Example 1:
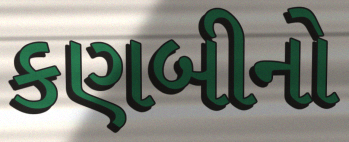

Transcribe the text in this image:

કણબીનો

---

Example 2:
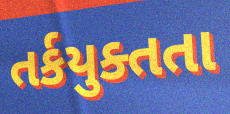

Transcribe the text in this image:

તર્કયુક્તતા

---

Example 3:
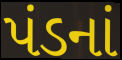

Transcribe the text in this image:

પંડનાં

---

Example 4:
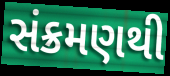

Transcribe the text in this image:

સંક્રમણથી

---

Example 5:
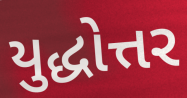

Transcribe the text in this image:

યુદ્ધોત્તર